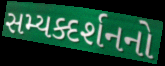
સમ્યક્દર્શનનો